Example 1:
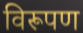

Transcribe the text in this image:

विरूपण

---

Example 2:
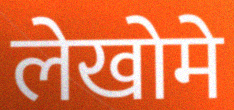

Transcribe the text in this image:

लेखोमे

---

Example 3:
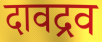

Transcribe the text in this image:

दावद्रव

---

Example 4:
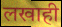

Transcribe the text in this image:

लखाही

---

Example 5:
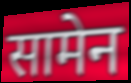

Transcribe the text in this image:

सामेन